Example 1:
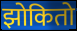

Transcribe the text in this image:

झोकितो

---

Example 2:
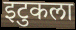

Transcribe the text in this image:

इटुकला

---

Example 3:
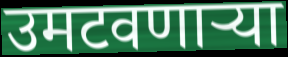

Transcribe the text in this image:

उमटवणार्‍या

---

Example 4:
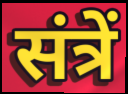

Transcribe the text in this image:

संत्रें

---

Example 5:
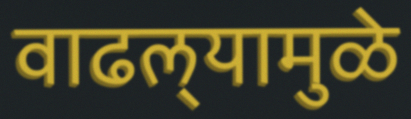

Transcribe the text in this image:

वाढल्यामुळे